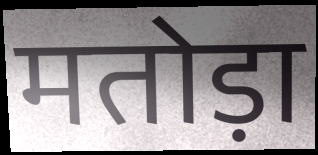
मतोड़ा